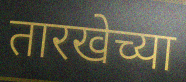
तारखेच्या